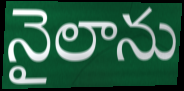
నైలాను